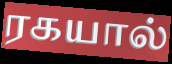
ரகயால்